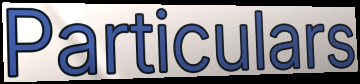
Particulars